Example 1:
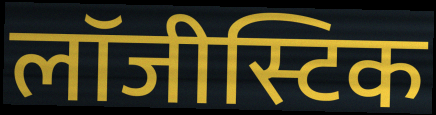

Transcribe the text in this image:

लॉजीस्टिक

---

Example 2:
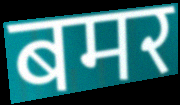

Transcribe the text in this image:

बमर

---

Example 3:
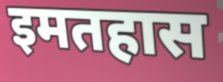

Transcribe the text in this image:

इमतहास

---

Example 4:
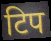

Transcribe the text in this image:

टिप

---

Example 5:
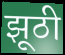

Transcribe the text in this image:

झूठी